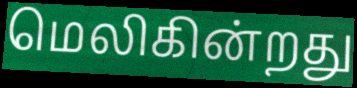
மெலிகின்றது